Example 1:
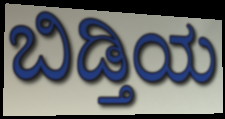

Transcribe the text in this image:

ಬಿಡ್ತಿಯ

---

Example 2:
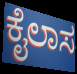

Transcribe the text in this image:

ಕೈಲಾಸ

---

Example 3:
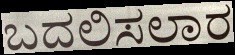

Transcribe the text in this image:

ಬದಲಿಸಲಾರ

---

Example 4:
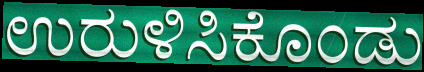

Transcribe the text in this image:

ಉರುಳಿಸಿಕೊಂಡು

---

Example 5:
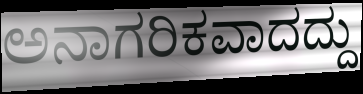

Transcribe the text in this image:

ಅನಾಗರಿಕವಾದದ್ದು